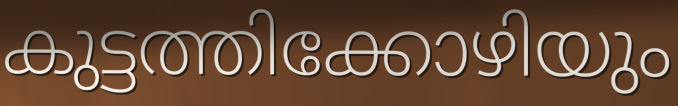
കുട്ടത്തിക്കോഴിയും